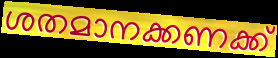
ശതമാനക്കണക്ക്